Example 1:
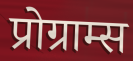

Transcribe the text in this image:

प्रोग्राम्स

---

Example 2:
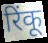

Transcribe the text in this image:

रिंकू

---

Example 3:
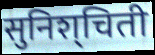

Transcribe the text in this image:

सुनिश्चिती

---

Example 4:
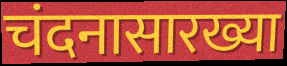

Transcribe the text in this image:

चंदनासारख्या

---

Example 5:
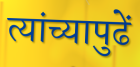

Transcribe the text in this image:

त्यांच्यापुढें